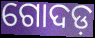
ଗୋଦଡ଼